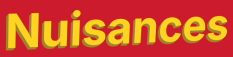
Nuisances